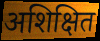
अशिक्षित